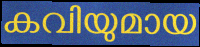
കവിയുമായ